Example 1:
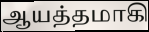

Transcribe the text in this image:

ஆயத்தமாகி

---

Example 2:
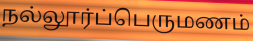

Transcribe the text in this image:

நல்லூர்ப்பெருமணம்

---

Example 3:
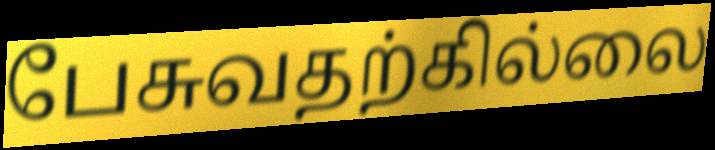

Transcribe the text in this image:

பேசுவதற்கில்லை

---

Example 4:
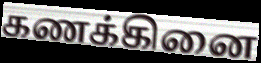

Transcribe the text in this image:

கணக்கினை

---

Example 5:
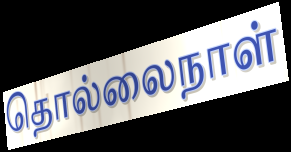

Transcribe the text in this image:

தொல்லைநாள்